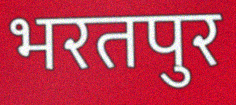
भरतपुर